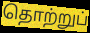
தொற்றுப்